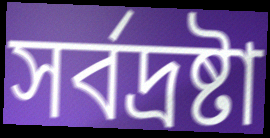
সর্বদ্রষ্টা